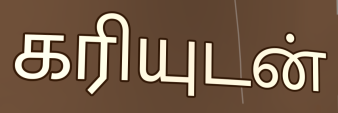
கரியுடன்